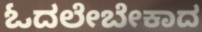
ಓದಲೇಬೇಕಾದ